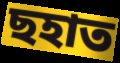
ছহাত